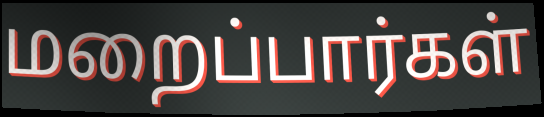
மறைப்பார்கள்